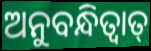
ଅନୁବନ୍ଧିତ୍ଵାତ୍